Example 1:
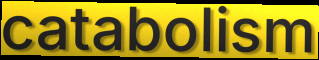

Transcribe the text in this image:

catabolism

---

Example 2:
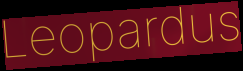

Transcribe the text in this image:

Leopardus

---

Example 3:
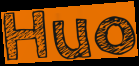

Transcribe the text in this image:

Huo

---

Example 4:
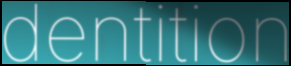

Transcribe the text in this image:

dentition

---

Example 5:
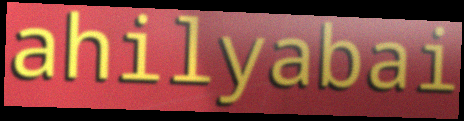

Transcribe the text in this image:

ahilyabai